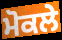
ਮੋਕਲੇ